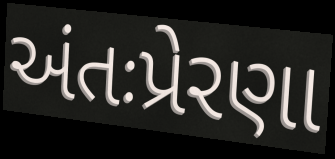
અંતઃપ્રેરણા